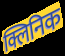
क्लिनिक